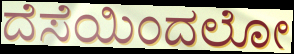
ದೆಸೆಯಿಂದಲೋ